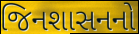
જિનશાસનનો